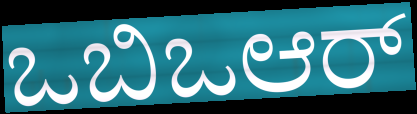
ಒಬಿಒಆರ್